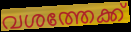
വശത്തേക്ക്